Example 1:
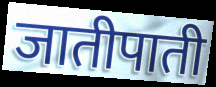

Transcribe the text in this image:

जातीपाती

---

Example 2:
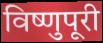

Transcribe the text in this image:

विष्णुपूरी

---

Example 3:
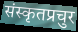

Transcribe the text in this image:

संस्कृतप्रचुर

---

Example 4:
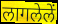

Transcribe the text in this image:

लागलेलें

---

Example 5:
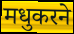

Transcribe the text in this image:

मधुकरने